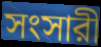
সংসারী